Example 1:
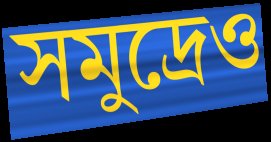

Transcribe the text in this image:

সমুদ্রেও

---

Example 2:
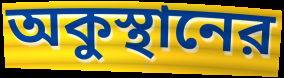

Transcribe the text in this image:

অকুস্থানের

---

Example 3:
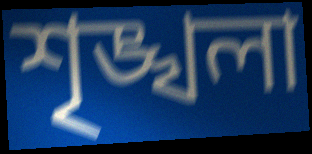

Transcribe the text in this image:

শৃঙ্খলা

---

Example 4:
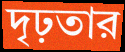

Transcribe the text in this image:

দৃঢ়তার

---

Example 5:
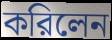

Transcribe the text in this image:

করিলেন